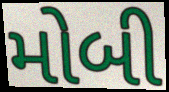
મોબી